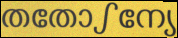
തതോഽന്യേ